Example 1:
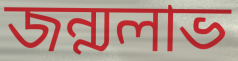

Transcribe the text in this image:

জন্মলাভ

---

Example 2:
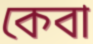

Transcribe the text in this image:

কেবা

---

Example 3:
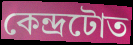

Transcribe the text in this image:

কেন্দ্ৰটোত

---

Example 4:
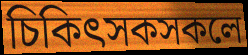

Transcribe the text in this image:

চিকিৎসকসকলে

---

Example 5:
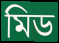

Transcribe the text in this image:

মিড